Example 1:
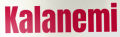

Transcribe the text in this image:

Kalanemi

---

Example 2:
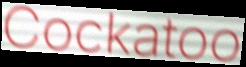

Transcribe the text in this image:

Cockatoo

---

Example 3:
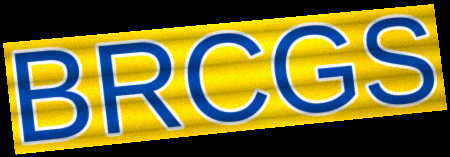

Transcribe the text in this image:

BRCGS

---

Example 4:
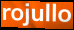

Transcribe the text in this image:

rojullo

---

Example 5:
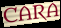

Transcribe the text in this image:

CARA